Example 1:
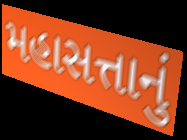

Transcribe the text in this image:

મહાસત્તાનું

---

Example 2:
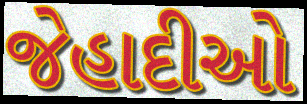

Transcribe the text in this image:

જેહાદીઓ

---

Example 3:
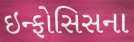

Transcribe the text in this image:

ઇન્ફોસિસના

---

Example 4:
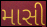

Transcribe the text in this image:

માસી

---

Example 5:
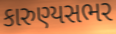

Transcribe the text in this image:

કારુણ્યસભર